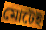
মোটেই